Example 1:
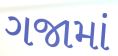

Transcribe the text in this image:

ગજામાં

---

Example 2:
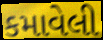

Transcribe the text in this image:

કમાવેલી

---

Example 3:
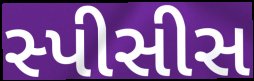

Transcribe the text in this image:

સ્પીસીસ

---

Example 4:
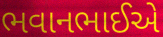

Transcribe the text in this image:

ભવાનભાઈએ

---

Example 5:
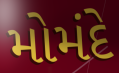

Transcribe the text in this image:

મોમંદે